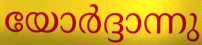
യോർദ്ദാന്നു